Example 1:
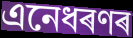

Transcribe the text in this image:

এনেধৰণৰ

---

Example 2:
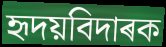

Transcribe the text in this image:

হৃদয়বিদাৰক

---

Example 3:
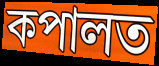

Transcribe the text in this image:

কপালত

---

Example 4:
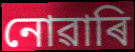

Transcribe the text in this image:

নোৱাৰি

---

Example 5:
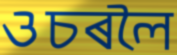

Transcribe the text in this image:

ওচৰলৈ